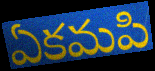
ఏకమపి